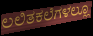
ಲಲಿತಕಲೆಗಳಲ್ಲೂ